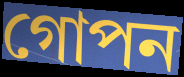
গোপন